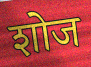
शोज